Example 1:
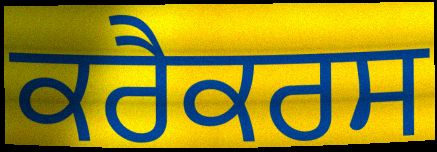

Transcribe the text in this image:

ਕਰੈਕਰਸ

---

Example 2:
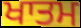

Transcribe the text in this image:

ਖਾਤਮ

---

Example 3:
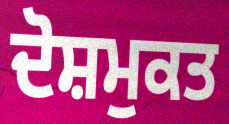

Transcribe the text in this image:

ਦੋਸ਼ਮੁਕਤ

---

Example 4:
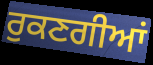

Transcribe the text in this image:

ਰੁਕਣਗੀਆਂ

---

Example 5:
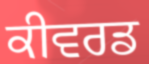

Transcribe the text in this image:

ਕੀਵਰਡ